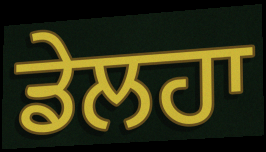
ਡੇਲਹਾ